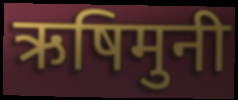
ऋषिमुनी